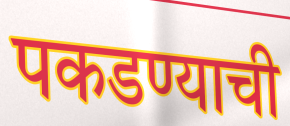
पकडण्याची